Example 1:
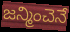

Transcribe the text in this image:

జన్మించెనే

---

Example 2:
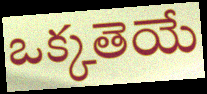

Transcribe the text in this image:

ఒక్కతెయే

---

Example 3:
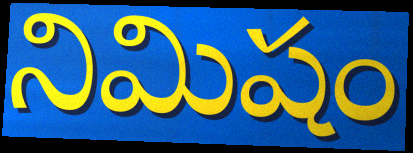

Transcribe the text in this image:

నిమిషం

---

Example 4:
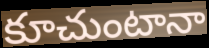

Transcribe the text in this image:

కూచుంటానా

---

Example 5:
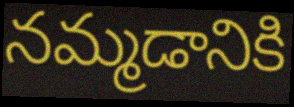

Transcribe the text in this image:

నమ్మడానికి